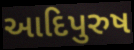
આદિપુરુષ